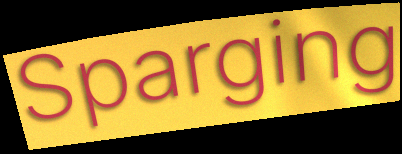
Sparging